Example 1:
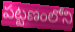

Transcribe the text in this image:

పట్టణంలోని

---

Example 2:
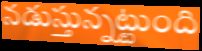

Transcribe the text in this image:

నడుస్తున్నట్టుంది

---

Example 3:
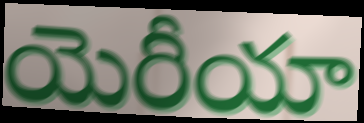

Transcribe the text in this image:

యెరీయా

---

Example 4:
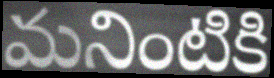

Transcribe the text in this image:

మనింటికి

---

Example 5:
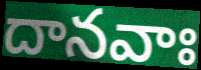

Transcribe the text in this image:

దానవాః